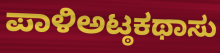
ಪಾಳಿಅಟ್ಠಕಥಾಸು